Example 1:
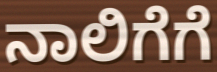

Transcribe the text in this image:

ನಾಲಿಗೆಗೆ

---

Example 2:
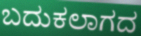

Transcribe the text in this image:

ಬದುಕಲಾಗದ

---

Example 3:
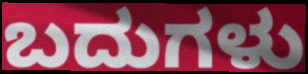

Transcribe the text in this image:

ಬದುಗಳು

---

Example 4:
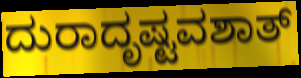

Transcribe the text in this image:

ದುರಾದೃಷ್ಟವಶಾತ್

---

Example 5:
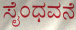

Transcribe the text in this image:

ಸೈಂಧವನೆ